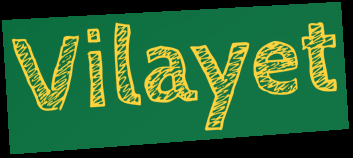
Vilayet